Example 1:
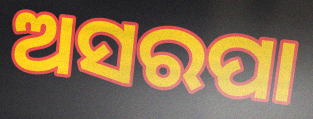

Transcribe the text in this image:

ଅସରପା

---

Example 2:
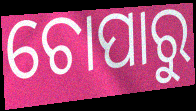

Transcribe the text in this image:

ଚୋପାରୁ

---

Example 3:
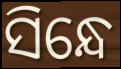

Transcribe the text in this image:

ସିନ୍ଧେ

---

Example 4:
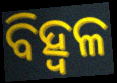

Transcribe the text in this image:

ବିହ୍ଵଳ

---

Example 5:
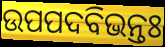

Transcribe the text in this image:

ଉପପଦବିଭନ୍ତଃ